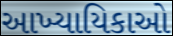
આખ્યાયિકાઓ